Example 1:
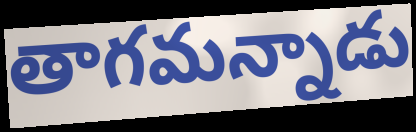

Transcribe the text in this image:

తాగమన్నాడు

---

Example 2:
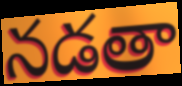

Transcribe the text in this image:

నడతా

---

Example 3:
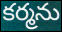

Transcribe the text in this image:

కర్మను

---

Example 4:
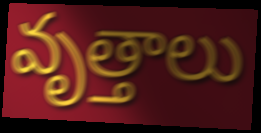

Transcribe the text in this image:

వృత్తాలు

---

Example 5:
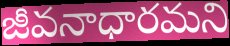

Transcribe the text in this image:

జీవనాధారమని